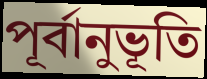
পূর্বানুভূতি